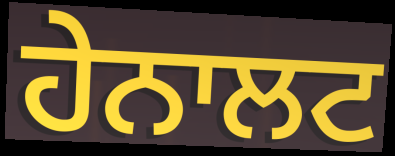
ਹੇਨਾਲਟ